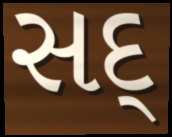
સદ્